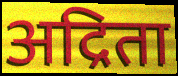
अद्रिता